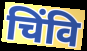
चिंवि